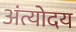
अंत्योदय